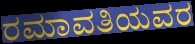
ರಮಾವತಿಯವರ